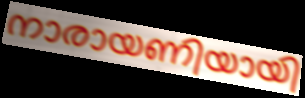
നാരായണിയായി